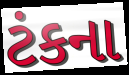
ટંકના